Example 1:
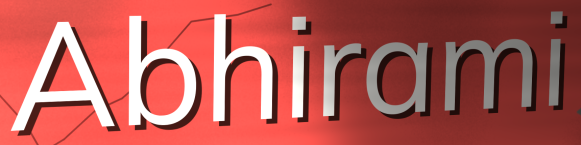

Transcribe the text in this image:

Abhirami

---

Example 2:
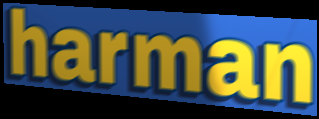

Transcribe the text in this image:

harman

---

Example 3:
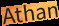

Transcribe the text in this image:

Athan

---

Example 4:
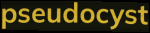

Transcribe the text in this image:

pseudocyst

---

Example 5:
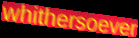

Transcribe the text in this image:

whithersoever